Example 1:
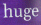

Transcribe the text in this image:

huge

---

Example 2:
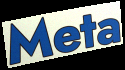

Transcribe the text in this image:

Meta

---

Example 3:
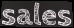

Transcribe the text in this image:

sales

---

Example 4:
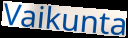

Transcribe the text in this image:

Vaikunta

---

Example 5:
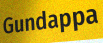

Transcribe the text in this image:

Gundappa